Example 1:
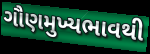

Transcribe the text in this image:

ગૌણમુખ્યભાવથી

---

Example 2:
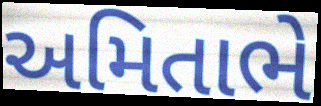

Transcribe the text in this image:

અમિતાભે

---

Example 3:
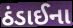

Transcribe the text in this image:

ઠંડાઈના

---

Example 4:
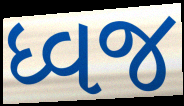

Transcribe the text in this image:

ધ્વજ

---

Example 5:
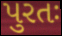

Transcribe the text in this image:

પુરતઃ